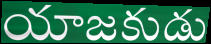
యాజకుడు